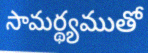
సామర్థ్యముతో